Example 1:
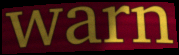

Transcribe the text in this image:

warn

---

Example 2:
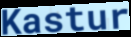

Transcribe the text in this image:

Kastur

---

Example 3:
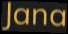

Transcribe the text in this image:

Jana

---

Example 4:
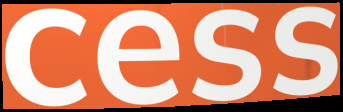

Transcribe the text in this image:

cess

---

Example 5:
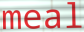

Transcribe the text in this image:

meal